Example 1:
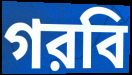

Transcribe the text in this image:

গরবি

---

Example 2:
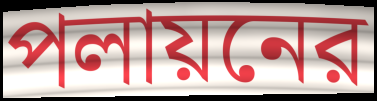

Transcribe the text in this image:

পলায়নের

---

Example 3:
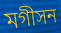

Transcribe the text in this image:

মগীসন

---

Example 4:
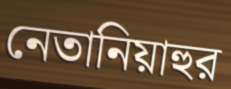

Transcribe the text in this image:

নেতানিয়াহুর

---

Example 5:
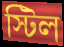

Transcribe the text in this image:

স্টিল